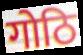
गोठि